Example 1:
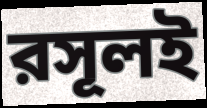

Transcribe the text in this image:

রসূলই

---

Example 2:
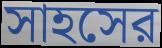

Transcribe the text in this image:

সাহসের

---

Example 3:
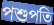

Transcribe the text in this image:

পশুপতি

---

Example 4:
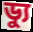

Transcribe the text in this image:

ড্যু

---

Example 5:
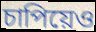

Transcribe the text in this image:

চাপিয়েও